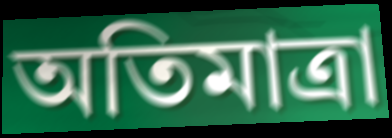
অতিমাত্ৰা